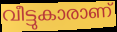
വീട്ടുകാരാണ്